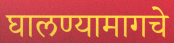
घालण्यामागचे